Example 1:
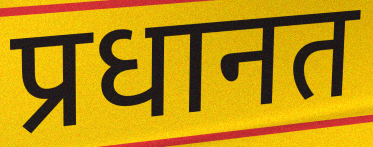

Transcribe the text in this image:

प्रधानत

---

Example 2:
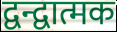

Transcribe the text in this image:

द्वन्द्वात्मक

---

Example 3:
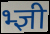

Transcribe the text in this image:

भ्ज्ञी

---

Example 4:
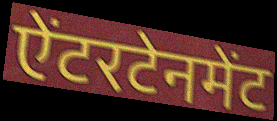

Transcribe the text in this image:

ऐंटरटेनमेंट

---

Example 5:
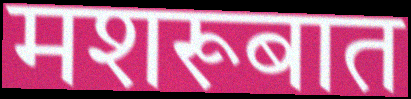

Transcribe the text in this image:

मशरूबात